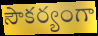
సౌకర్యంగా